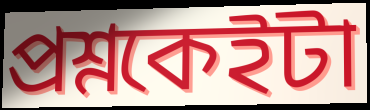
প্ৰশ্নকেইটা